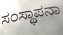
ಸಂಸ್ಥಾಪನಾ